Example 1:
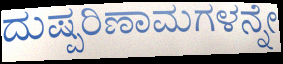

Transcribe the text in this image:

ದುಷ್ಪರಿಣಾಮಗಳನ್ನೇ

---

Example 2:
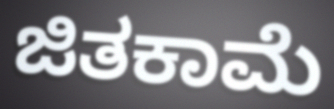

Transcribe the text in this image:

ಜಿತಕಾಮೆ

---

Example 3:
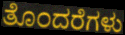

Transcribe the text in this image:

ತೊಂದರೆಗಳು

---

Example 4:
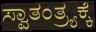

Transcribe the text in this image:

ಸ್ವಾತಂತ್ರ್ಯಕ್ಕೆ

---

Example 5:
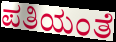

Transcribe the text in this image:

ಪತಿಯಂತೆ